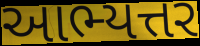
આભ્યત્તર